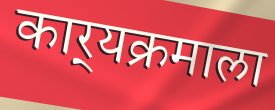
कार्यक्रमाला